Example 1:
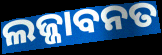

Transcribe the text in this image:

ଲଜ୍ଜାବନତ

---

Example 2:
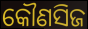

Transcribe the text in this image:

କୌଣସିଜ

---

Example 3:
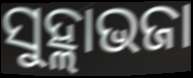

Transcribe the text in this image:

ସୁହ୍ଲାଭଜା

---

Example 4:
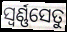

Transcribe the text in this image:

ସ୍ଵର୍ଣ୍ଣସେତୁ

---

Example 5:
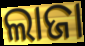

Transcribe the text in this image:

ଲାଜା